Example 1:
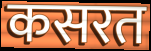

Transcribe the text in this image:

कसरत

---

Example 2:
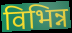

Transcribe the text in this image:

विभिन्न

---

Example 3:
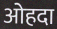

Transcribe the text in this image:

ओहदा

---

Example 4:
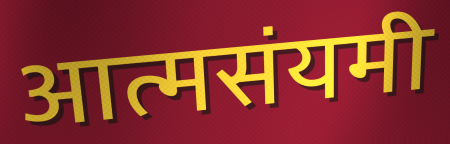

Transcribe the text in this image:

आत्मसंयमी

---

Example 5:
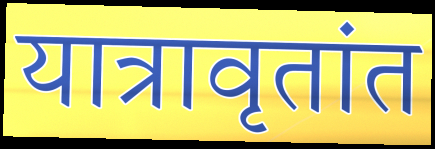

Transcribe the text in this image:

यात्रावृतांत